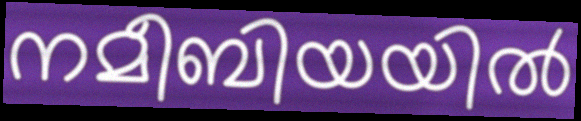
നമീബിയയിൽ